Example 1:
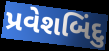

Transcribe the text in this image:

પ્રવેશબિંદુ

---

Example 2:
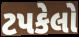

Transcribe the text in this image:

ટપકેલો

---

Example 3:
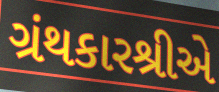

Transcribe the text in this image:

ગ્રંથકારશ્રીએ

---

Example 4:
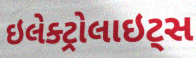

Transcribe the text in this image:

ઇલેક્ટ્રોલાઇટ્સ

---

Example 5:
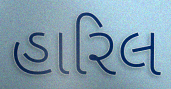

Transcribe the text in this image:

હારિલ